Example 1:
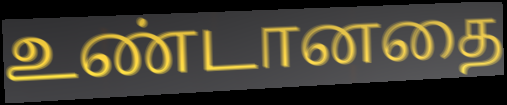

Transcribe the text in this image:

உண்டானதை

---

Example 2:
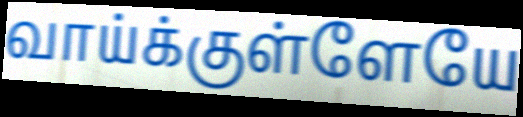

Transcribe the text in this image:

வாய்க்குள்ளேயே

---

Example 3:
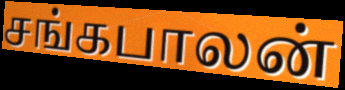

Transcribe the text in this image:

சங்கபாலன்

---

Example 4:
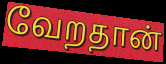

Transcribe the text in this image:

வேறதான்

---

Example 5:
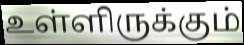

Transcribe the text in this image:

உள்ளிருக்கும்